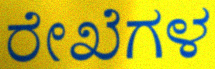
ರೇಖೆಗಳ